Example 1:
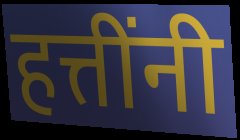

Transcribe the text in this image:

हत्तींनी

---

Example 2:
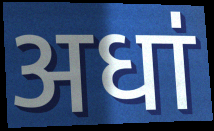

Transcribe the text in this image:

अधा॑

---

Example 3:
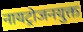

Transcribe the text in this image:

नायट्रोजनयुक्त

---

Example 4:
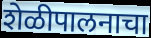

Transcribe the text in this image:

शेळीपालनाचा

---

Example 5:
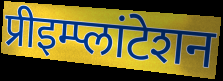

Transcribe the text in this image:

प्रीइम्प्लांटेशन